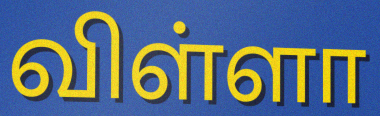
விள்ளா